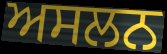
ਅਸਲਨ